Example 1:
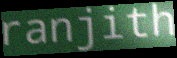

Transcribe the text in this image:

ranjith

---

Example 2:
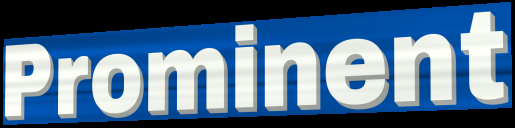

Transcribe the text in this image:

Prominent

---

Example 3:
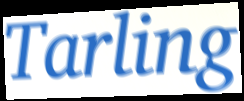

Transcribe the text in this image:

Tarling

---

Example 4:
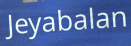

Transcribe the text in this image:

Jeyabalan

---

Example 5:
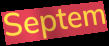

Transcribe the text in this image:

Septem